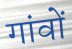
गांवों